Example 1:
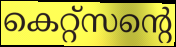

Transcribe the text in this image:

കെറ്റ്സന്റെ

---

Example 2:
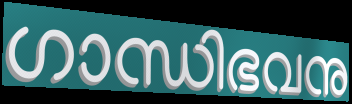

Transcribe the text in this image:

ഗാന്ധിഭവനു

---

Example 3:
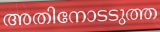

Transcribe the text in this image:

അതിനോടടുത്ത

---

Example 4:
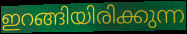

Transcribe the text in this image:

ഇറങ്ങിയിരിക്കുന്ന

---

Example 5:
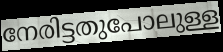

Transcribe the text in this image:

നേരിട്ടതുപോലുള്ള